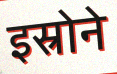
इस्रोने